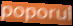
poporul